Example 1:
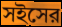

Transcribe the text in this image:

সইসের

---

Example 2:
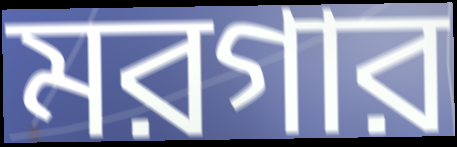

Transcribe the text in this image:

মরগার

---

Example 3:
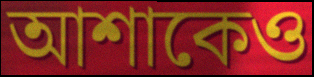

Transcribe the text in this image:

আশাকেও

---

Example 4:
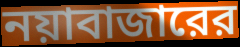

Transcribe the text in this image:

নয়াবাজারের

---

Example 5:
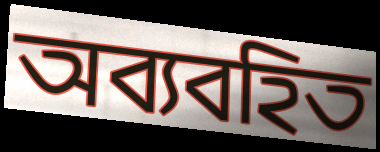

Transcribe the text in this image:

অব্যবহিত